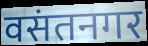
वसंतनगर